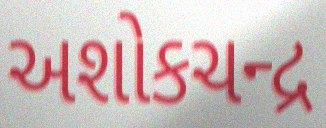
અશોકચન્દ્ર